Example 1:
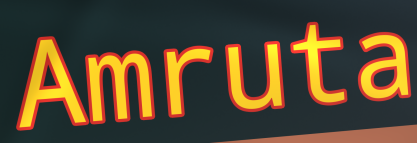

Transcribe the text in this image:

Amruta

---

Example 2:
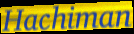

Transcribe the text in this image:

Hachiman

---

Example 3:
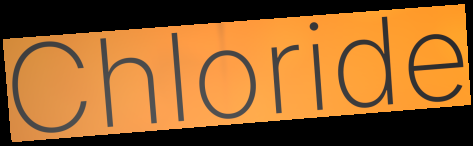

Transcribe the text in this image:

Chloride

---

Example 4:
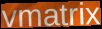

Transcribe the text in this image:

vmatrix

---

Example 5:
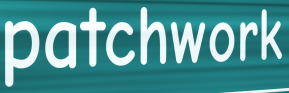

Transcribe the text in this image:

patchwork